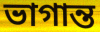
ভাগান্ত